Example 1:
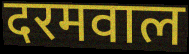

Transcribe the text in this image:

दरमवाल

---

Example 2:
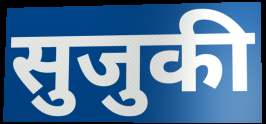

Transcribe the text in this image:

सुजुकी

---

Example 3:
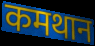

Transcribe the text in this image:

कमथान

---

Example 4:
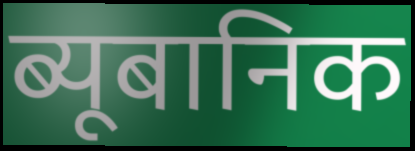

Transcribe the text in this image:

ब्यूबानिक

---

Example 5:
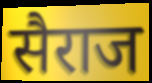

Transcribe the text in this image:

सैराज